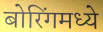
बोरिंगमध्ये